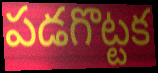
పడగొట్టక